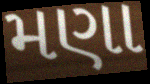
મણા